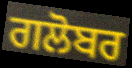
ਗਲੋਬਰ